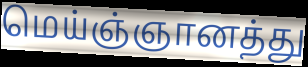
மெய்ஞ்ஞானத்து